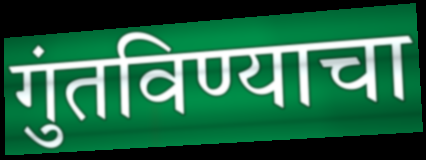
गुंतविण्याचा